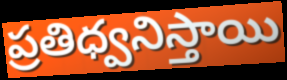
ప్రతిధ్వనిస్తాయి